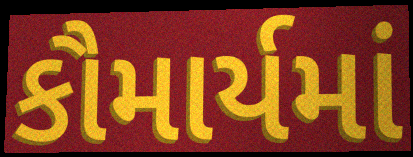
કૌમાર્યમાં